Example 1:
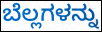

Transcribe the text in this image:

ಬೆಲ್ಲಗಳನ್ನು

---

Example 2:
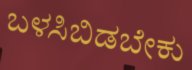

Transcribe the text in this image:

ಬಳಸಿಬಿಡಬೇಕು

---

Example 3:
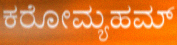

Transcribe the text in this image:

ಕರೋಮ್ಯಹಮ್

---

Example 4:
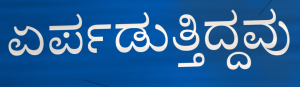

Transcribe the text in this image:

ಏರ್ಪಡುತ್ತಿದ್ದವು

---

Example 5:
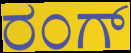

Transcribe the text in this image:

ರಂಗ್